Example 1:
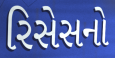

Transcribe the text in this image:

રિસેસનો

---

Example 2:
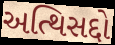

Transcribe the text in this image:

અત્થિસદ્દો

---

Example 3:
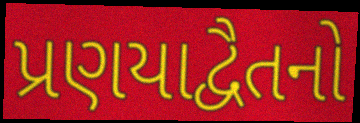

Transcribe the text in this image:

પ્રણયાદ્વૈતનો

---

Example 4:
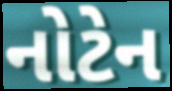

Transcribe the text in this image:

નોટેન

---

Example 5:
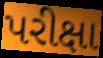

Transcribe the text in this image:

પરીક્ષા